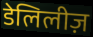
डेलिलीज़